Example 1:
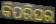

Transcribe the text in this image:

କିପରିଘର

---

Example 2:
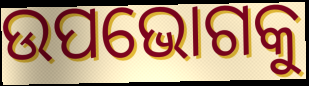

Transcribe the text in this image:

ଉପଭୋଗକୁ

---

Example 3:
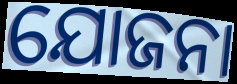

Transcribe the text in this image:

ଯୋଜନା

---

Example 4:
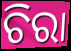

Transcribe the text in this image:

ଚିରା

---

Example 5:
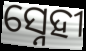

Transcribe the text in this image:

ସ୍ନେହୀ